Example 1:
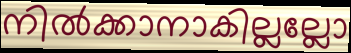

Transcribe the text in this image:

നിൽക്കാനാകില്ലല്ലോ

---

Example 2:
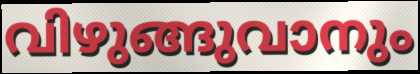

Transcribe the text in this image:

വിഴുങ്ങുവാനും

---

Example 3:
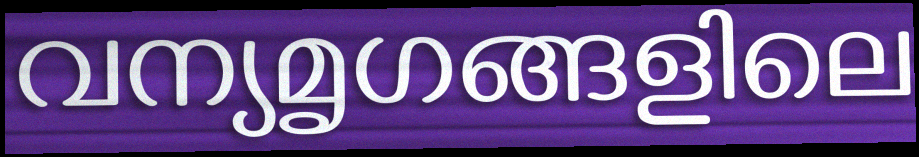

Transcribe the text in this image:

വന്യമൃഗങ്ങളിലെ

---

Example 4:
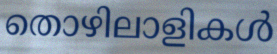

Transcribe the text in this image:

തൊഴിലാളികൾ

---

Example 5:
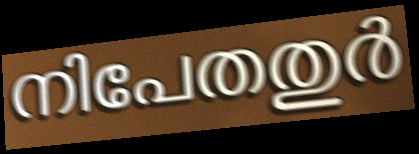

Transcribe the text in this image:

നിപേതതുർ